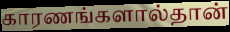
காரணங்களால்தான்